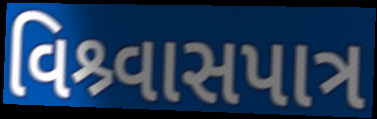
વિશ્ર્વાસપાત્ર